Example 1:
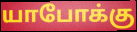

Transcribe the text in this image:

யாபோக்கு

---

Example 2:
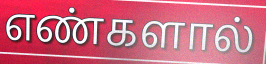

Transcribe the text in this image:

எண்களால்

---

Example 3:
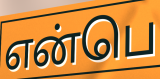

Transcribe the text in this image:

என்பெ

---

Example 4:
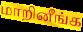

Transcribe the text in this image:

மாறினீங்க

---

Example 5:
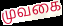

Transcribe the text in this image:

முவகை